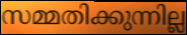
സമ്മതിക്കുന്നില്ല